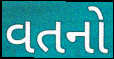
વતનો